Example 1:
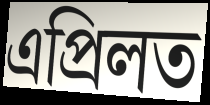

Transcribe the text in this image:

এপ্ৰিলত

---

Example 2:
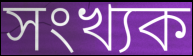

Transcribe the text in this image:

সংখ্যক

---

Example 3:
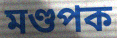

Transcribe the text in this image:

মণ্ডপক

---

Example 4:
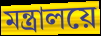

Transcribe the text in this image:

মন্ত্ৰালয়ে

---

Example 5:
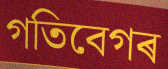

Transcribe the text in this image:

গতিবেগৰ